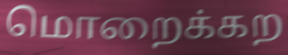
மொறைக்கற